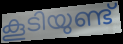
കൂടിയുണ്ട്